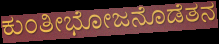
ಕುಂತೀಭೋಜನೊಡೆತನ